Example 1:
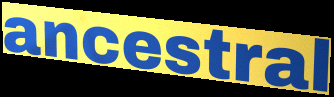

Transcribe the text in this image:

ancestral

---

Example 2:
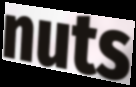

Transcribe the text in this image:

nuts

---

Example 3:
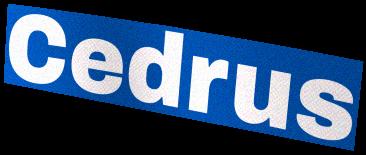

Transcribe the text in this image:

Cedrus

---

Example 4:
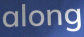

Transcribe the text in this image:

along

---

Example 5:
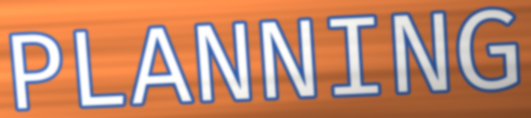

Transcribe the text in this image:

PLANNING